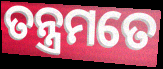
ତନ୍ତ୍ରମତେ